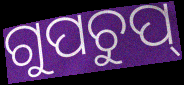
ଗୁପଚୁପ୍